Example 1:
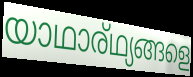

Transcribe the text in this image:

യാഥാര്ഥ്യങ്ങളെ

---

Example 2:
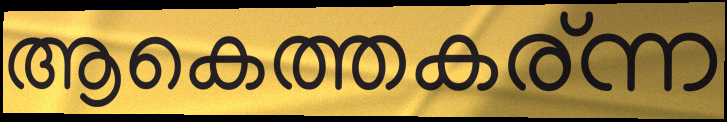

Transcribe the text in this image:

ആകെത്തകര്ന്ന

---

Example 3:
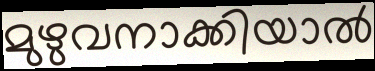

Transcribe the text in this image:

മുഴുവനാക്കിയാൽ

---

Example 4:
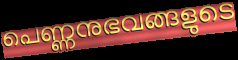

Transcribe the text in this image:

പെണ്ണനുഭവങ്ങളുടെ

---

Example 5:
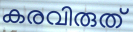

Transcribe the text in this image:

കരവിരുത്